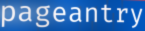
pageantry